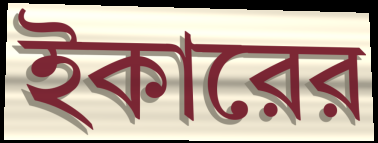
ইকারের